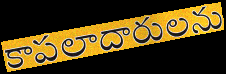
కాపలాదారులను